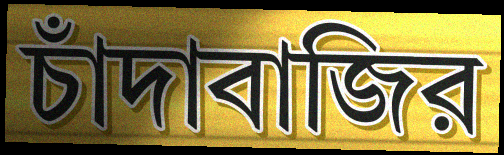
চাঁদাবাজির